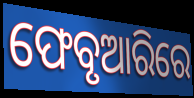
ଫେବୃଆରିରେ